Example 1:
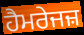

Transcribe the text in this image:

ਹੈਮਰੇਜਜ਼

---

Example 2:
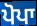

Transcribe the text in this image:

ਪੋਪਾ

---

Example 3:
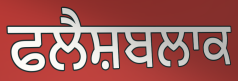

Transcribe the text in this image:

ਫਲੈਸ਼ਬਲਾਕ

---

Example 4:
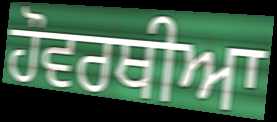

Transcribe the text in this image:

ਹੌਵਰਥੀਆ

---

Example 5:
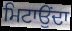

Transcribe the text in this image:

ਮਿਟਾਉਂਦਾ